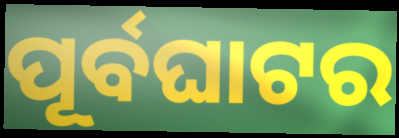
ପୂର୍ବଘାଟର